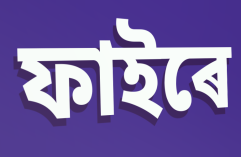
ফাইৰে